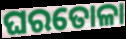
ଘରତୋଳା